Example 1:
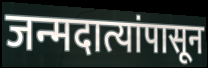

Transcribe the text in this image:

जन्मदात्यांपासून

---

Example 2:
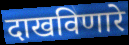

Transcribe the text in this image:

दाखविणारे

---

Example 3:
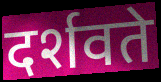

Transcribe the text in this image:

दर्शवते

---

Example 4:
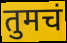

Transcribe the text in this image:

तुमचं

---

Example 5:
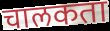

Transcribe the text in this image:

चालकता